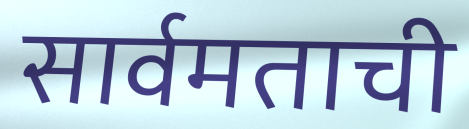
सार्वमताची